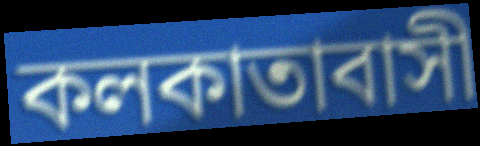
কলকাতাবাসী